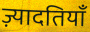
ज़्यादतियाँ